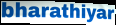
bharathiyar